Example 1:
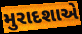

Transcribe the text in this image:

મુરાદશાએ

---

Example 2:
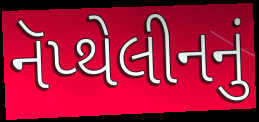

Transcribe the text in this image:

નૅપ્થેલીનનું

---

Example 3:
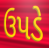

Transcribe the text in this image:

ઉપડે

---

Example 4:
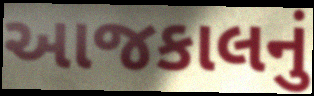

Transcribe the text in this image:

આજકાલનું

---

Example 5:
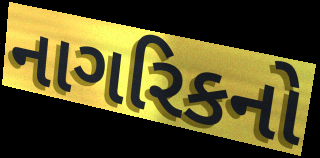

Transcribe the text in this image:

નાગરિકનો